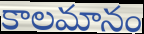
కాలమానం